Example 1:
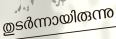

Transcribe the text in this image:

തുടർന്നായിരുന്നു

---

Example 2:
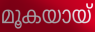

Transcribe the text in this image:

മൂകയായ്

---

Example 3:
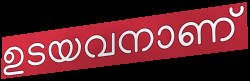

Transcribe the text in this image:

ഉടയവനാണ്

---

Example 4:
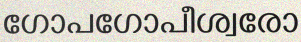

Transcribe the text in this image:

ഗോപഗോപീശ്വരോ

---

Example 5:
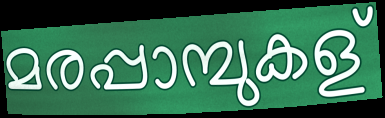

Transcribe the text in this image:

മരപ്പാമ്പുകള്